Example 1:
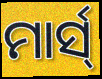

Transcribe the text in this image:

ମାର୍ସ୍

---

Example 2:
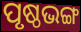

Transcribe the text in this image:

ପୃଷ୍ଠଭଙ୍ଗ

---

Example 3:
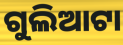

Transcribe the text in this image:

ଗୁଲିଆଟା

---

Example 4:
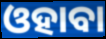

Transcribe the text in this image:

ଓହାବା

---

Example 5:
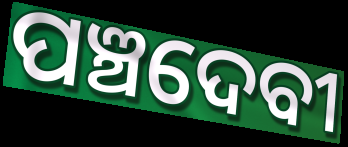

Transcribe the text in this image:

ପଞ୍ଚଦେବୀ